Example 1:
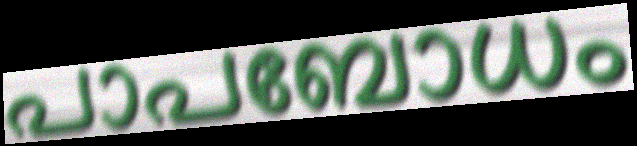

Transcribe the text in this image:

പാപബോധം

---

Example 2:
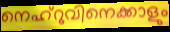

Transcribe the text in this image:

നെഹ്റുവിനെക്കാളും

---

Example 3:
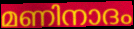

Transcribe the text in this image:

മണിനാദം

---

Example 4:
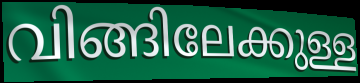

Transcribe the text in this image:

വിങ്ങിലേക്കുള്ള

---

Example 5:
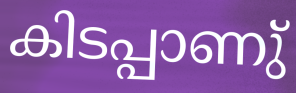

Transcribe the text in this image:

കിടപ്പാണു്